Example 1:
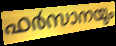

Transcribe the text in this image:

ഫർസാനയും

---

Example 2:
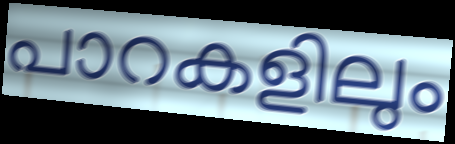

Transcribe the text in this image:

പാറകളിലും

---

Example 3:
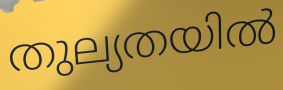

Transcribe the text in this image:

തുല്യതയിൽ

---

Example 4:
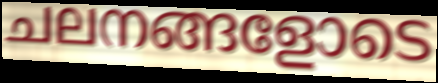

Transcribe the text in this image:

ചലനങ്ങളോടെ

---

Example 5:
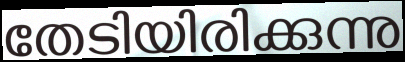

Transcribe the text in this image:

തേടിയിരിക്കുന്നു